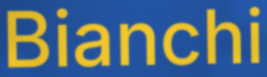
Bianchi